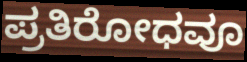
ಪ್ರತಿರೋಧವೂ